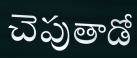
చెపుతాడో